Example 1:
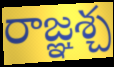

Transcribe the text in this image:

రాజ్ఞశ్చ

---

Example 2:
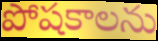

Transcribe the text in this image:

పోషకాలను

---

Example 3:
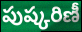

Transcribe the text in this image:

పుష్కరిణీ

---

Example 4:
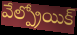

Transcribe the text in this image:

వేల్ప్రోయిక్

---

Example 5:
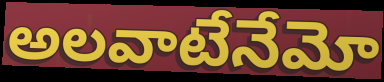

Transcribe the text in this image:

అలవాటేనేమో